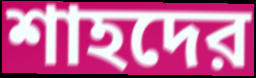
শাহদের